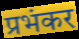
प्रभंकर